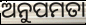
ଅନୁପମତା